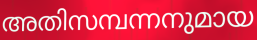
അതിസമ്പന്നനുമായ